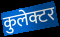
कुलेक्टर